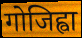
गोजिह्वा